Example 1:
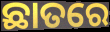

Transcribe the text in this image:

ଛାତରେ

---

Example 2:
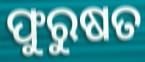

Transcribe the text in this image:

ଫୁରୁଷତ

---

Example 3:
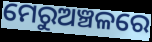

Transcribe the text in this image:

ମେରୁଅଞ୍ଚଳରେ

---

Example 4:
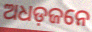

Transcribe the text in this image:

ଅଧଡ଼ଜନେ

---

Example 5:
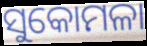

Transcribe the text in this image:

ସୁକୋମଳା